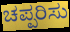
ಚಪ್ಪರಿಸು